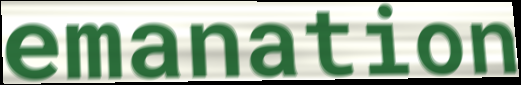
emanation